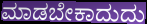
ಮಾಡಬೇಕಾದುದು